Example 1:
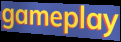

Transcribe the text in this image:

gameplay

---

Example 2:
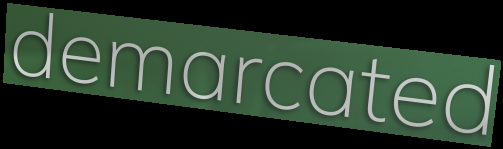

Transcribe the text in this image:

demarcated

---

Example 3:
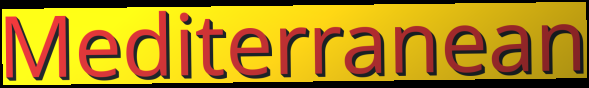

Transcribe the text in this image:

Mediterranean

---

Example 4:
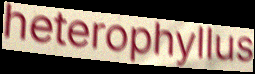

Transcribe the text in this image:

heterophyllus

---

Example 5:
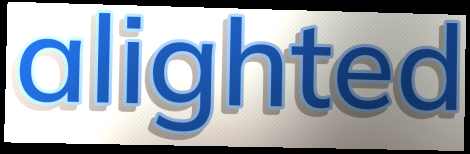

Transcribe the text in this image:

alighted